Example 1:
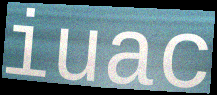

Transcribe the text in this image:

iuac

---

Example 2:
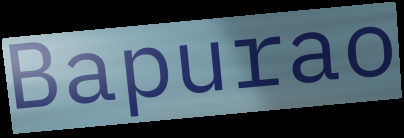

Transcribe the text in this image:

Bapurao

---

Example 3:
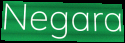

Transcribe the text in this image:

Negara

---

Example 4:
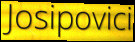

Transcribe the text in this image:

Josipovici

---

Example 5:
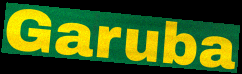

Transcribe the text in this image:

Garuba